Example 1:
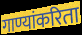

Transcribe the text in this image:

गाण्यांकरिता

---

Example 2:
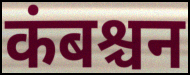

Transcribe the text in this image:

कंबश्चन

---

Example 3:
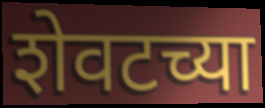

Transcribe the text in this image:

शेवटच्या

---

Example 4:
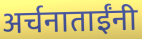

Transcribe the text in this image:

अर्चनाताईंनी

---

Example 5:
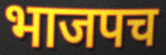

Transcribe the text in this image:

भाजपच